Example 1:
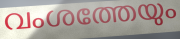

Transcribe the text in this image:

വംശത്തേയും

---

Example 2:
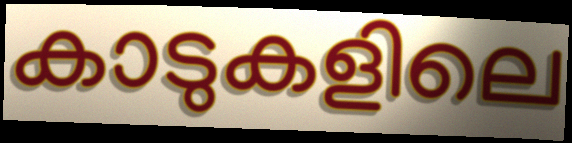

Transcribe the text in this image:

കാടുകളിലെ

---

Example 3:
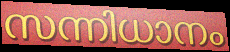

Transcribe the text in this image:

സന്നിധാനം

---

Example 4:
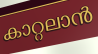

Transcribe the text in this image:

കാറ്റലാൻ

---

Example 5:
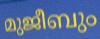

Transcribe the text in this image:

മുജീബും